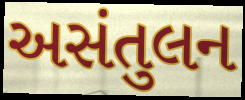
અસંતુલન